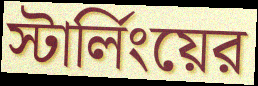
স্টার্লিংয়ের